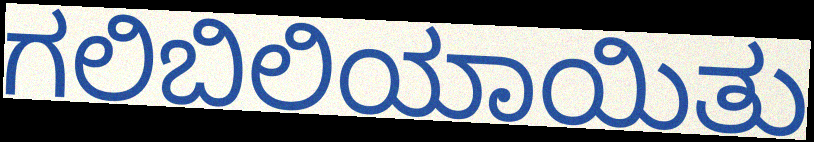
ಗಲಿಬಿಲಿಯಾಯಿತು